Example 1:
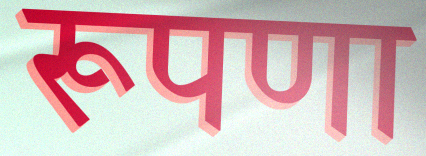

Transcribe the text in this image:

रूपणा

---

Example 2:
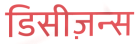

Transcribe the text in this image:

डिसीज़न्स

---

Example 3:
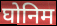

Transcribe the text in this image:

घोनिम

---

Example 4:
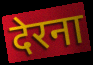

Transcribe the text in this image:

देरना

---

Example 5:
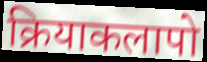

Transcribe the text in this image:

क्रियाकलापो